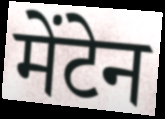
मेंटेन